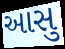
આસુ